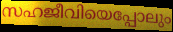
സഹജീവിയെപ്പോലും